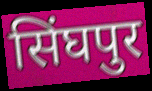
सिंघपुर